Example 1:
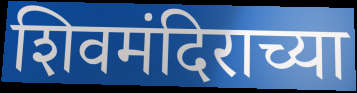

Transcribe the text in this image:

शिवमंदिराच्या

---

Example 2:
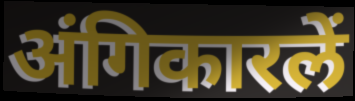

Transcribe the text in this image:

अंगिकारलें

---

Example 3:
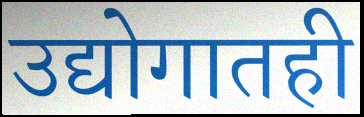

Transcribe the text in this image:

उद्योगातही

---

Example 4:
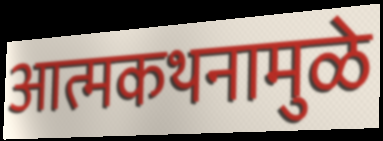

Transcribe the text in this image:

आत्मकथनामुळे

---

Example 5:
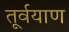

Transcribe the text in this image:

तूर्वयाण